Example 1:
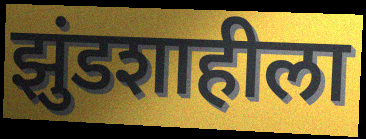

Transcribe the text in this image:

झुंडशाहीला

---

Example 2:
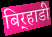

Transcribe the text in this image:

बिर्हाडी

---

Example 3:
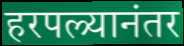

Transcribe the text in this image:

हरपल्यानंतर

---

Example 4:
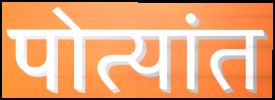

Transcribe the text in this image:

पोत्यांत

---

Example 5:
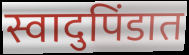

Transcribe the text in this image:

स्वादुपिंडात